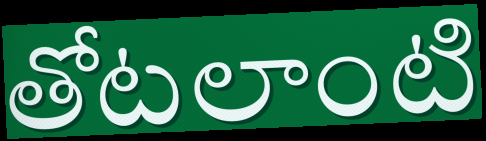
తోటలాంటి